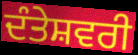
ਦੰਤੇਸ਼ਵਰੀ